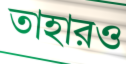
তাহারও